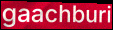
gaachburi